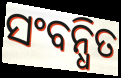
ସଂବନ୍ଧିତ